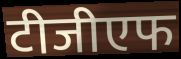
टीजीएफ